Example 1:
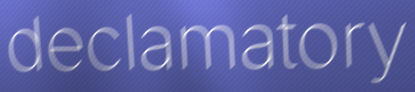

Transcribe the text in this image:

declamatory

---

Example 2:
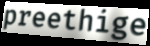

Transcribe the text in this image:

preethige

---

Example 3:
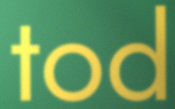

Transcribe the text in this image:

tod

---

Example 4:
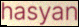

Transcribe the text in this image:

hasyan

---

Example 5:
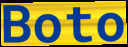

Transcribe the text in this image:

Boto